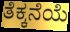
ತೆಕ್ಕನೆಯೆ